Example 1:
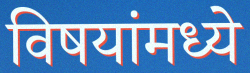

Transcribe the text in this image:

विषयांमध्ये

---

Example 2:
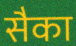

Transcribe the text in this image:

सैका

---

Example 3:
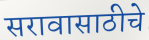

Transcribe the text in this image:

सरावासाठीचे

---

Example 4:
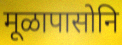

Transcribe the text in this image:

मूळापासोनि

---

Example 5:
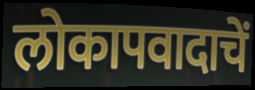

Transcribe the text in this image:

लोकापवादाचें